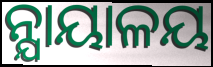
ନ୍ଯାୟାଳୟ